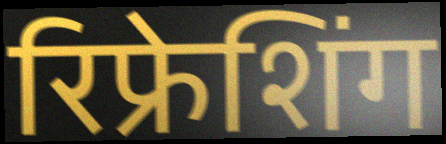
रिफ्रेशिंग